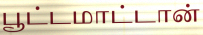
பூட்டமாட்டான்